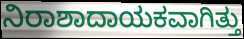
ನಿರಾಶಾದಾಯಕವಾಗಿತ್ತು